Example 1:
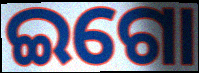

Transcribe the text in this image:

ଇଗୋ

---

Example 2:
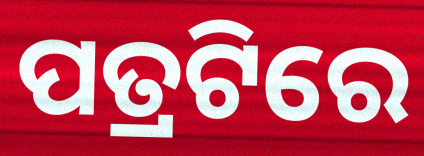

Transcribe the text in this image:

ପତ୍ରଟିରେ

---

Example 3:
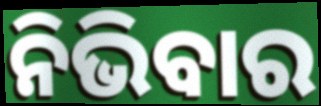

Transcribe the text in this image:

ନିଭିବାର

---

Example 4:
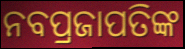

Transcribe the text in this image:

ନବପ୍ରଜାପତିଙ୍କ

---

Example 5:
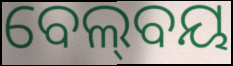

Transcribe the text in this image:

ବେଲ୍‍ବୟ